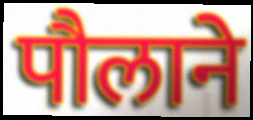
पौलाने